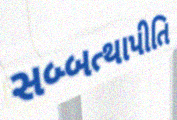
સબ્બત્થાપીતિ